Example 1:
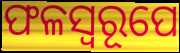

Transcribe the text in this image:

ଫଳସ୍ୱରୂପେ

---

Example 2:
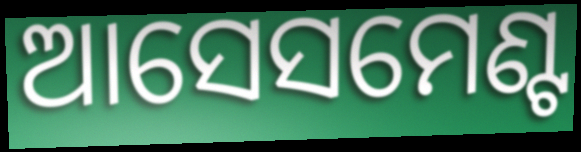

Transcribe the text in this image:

ଆସେସମେଣ୍ଟ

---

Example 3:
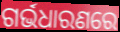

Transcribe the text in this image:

ଗର୍ଭଧାରଣରେ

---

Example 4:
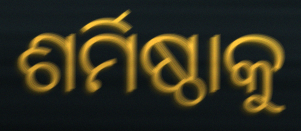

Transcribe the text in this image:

ଶର୍ମିଷ୍ଠାକୁ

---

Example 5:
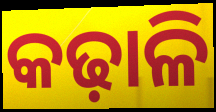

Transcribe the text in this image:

କଢ଼ାଳି